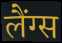
लैंग्स